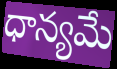
ధాన్యమే